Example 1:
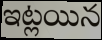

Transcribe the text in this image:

ఇట్లయిన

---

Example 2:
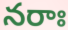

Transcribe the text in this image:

నరాః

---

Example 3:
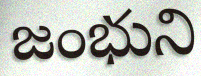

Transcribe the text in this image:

జంభుని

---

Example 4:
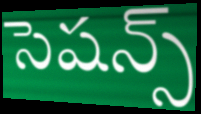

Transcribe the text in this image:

సెషన్స్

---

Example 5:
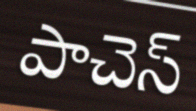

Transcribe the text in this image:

పాచెస్